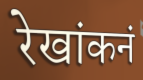
रेखांकनं